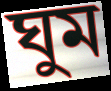
ঘুম